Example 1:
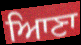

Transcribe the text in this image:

ਆਿਣਾ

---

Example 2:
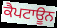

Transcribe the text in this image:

ਕੈਪਟਾਊਨ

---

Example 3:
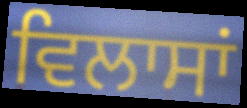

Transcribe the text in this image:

ਵਿਲਾਸਾਂ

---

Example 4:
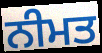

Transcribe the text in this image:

ਨੀਮਤ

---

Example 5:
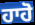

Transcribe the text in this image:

ਹਾਹੋ